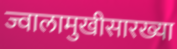
ज्वालामुखीसारख्या